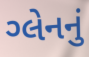
ગ્લેનનું